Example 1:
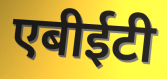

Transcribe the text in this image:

एबीईटी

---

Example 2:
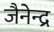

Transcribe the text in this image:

जैनेन्‍द्र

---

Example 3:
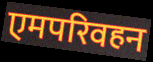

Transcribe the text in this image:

एमपरिवहन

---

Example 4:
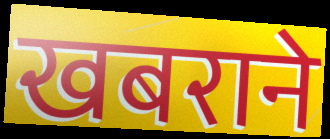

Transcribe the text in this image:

खबराने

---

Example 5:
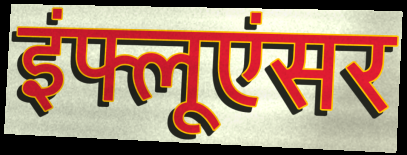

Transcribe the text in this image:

इंफ्लूएंसर